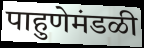
पाहुणेमंडळी